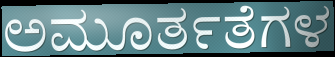
ಅಮೂರ್ತತೆಗಳ